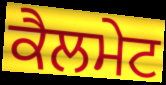
ਕੈਲਮੇਟ